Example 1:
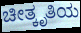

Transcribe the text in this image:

ಚೀತ್ಕೃತಿಯ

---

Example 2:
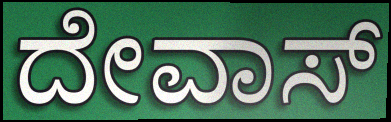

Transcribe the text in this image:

ದೇವಾಸ್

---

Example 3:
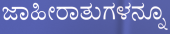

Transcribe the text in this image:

ಜಾಹೀರಾತುಗಳನ್ನೂ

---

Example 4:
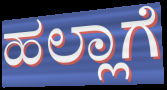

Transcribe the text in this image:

ಹಲ್ಲಾಗೆ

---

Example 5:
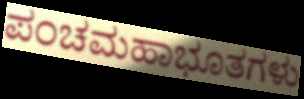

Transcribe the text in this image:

ಪಂಚಮಹಾಭೂತಗಳು